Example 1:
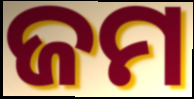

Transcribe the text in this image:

ଜମ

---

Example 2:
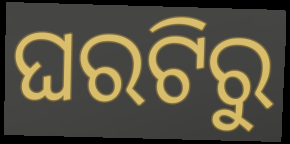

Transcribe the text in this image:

ଘରଟିରୁ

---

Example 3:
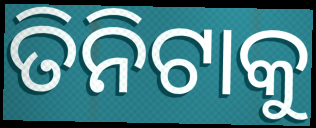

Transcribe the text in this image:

ତିନିଟାକୁ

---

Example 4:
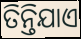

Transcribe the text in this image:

ତିନ୍ତିଯାଏ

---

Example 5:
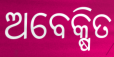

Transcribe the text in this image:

ଅବେକ୍ଷିତ